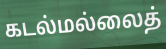
கடல்மல்லைத்